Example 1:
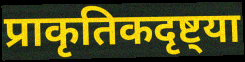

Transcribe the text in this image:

प्राकृतिकदृष्ट्या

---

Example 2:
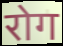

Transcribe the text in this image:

रोग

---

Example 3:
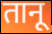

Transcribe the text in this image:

तानू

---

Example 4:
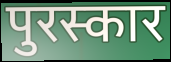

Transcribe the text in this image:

पुरस्कार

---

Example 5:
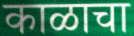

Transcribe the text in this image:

काळाचा